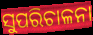
ସୁପରିଚାଳନା